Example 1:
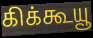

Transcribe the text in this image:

கிக்கூயூ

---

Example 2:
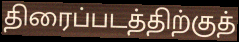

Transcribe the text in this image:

திரைப்படத்திற்குத்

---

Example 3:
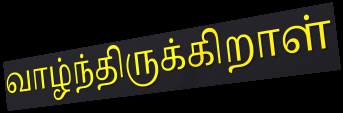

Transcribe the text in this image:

வாழ்ந்திருக்கிறாள்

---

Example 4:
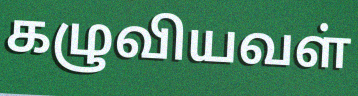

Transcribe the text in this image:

கழுவியவள்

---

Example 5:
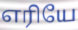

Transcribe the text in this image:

எரியே